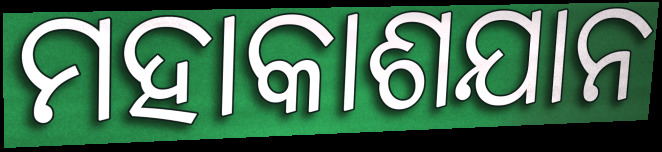
ମହାକାଶଯାନ